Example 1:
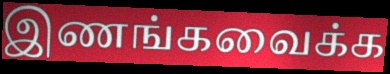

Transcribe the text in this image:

இணங்கவைக்க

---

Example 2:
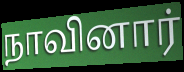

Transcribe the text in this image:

நாவினார்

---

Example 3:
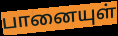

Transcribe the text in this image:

பானையுள்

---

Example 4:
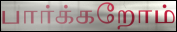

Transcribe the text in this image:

பார்க்கறோம்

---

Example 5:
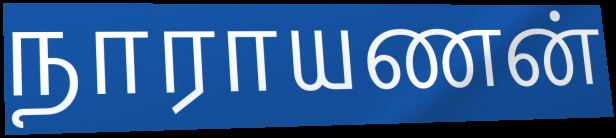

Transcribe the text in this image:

நாராயணன்